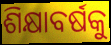
ଶିକ୍ଷାବର୍ଷକୁ